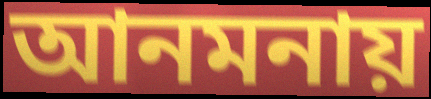
আনমনায়